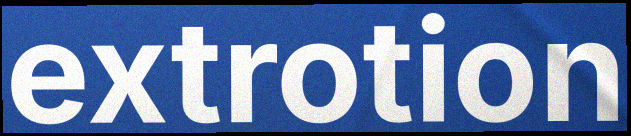
extrotion